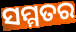
ସମ୍ମତର